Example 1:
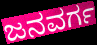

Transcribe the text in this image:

ಜನವರ್ಗ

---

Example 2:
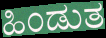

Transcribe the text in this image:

ಹಿಂಡುತ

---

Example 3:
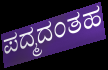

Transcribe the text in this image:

ಪದ್ಮದಂತಹ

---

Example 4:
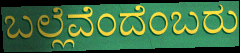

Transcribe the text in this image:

ಬಲ್ಲೆವೆಂದೆಂಬರು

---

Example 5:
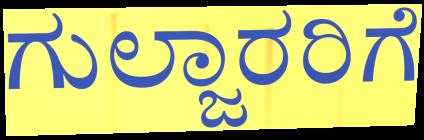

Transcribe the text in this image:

ಗುಲ್ಜಾರರಿಗೆ